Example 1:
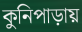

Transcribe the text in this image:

কুনিপাড়ায়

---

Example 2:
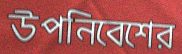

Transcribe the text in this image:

উপনিবেশের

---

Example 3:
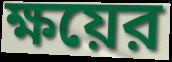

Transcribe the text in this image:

ক্ষয়ের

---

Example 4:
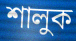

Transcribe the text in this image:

শালুক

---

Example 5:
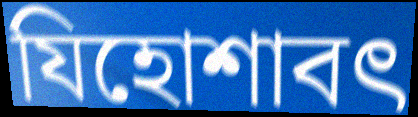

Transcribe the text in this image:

যিহোশাবৎ